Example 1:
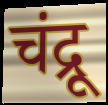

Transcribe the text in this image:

चंद्रू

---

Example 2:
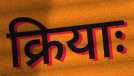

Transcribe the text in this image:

क्रियाः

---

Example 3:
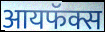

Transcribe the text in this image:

आयफॅक्स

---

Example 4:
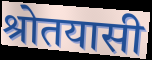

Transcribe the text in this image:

श्रोतयासी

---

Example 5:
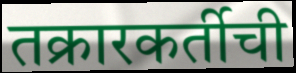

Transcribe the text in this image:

तक्रारकर्तीची